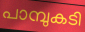
പാമ്പുകടി